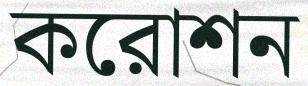
করোশন